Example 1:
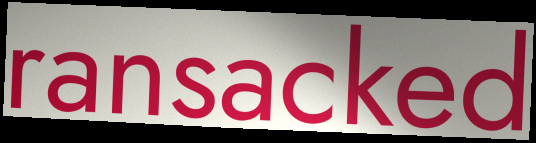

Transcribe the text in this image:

ransacked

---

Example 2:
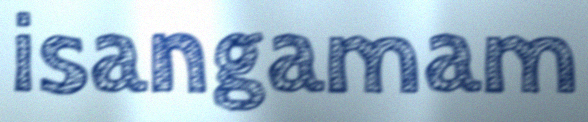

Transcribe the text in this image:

isangamam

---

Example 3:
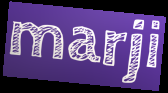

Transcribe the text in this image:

marji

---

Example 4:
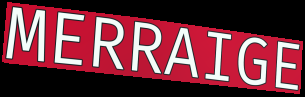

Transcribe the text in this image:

MERRAIGE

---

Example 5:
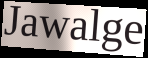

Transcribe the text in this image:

Jawalge